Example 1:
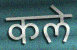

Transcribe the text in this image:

कले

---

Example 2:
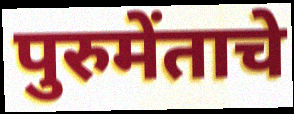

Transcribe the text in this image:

पुरुमेंताचे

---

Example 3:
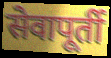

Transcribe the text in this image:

सेवापूर्ती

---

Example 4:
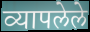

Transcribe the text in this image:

व्यापलेले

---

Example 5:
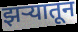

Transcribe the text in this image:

झऱ्यातून